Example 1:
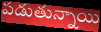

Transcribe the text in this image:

పడుతున్నాయి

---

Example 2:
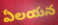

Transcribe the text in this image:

ఏలయన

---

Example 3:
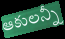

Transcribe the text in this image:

ఆకులన్నీ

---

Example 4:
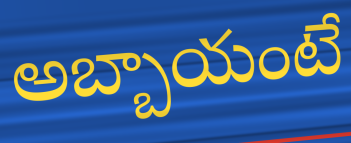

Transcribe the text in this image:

అబ్బాయంటే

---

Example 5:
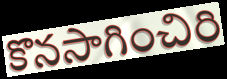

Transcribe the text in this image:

కొనసాగించిరి